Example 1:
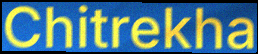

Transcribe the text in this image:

Chitrekha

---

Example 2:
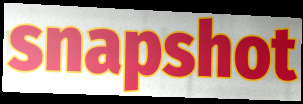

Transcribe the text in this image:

snapshot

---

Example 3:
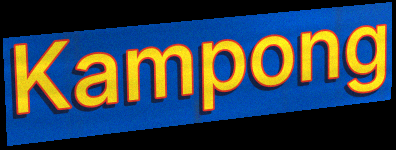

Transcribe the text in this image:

Kampong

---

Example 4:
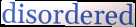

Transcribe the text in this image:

disordered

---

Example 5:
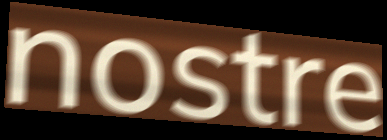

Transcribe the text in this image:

nostre